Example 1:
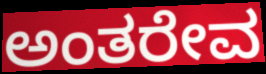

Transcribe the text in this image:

ಅಂತರೇವ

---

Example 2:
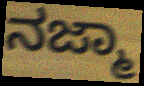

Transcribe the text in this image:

ನಜ್ಮಾ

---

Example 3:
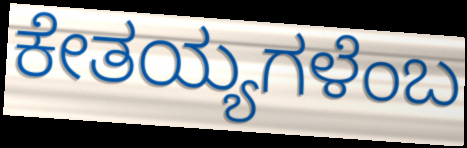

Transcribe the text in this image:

ಕೇತಯ್ಯಗಳೆಂಬ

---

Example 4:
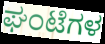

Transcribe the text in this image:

ಘಂಟೆಗಳ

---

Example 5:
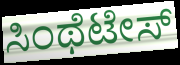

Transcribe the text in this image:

ಸಿಂಥೆಟೇಸ್